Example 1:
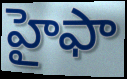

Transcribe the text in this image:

హైఫా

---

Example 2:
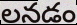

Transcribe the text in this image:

లనడం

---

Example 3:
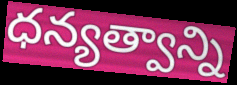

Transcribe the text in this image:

ధన్యత్వాన్ని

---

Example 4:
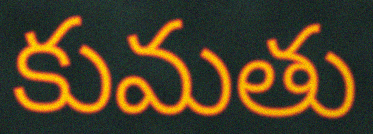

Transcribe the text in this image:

కుమతు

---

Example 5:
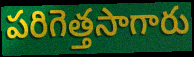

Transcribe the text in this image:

పరిగెత్తసాగారు